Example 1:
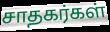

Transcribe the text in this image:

சாதகர்கள்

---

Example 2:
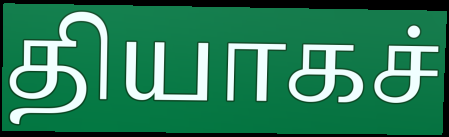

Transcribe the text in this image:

தியாகச்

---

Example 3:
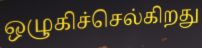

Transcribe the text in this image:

ஒழுகிச்செல்கிறது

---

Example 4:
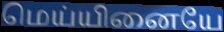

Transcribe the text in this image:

மெய்யினையே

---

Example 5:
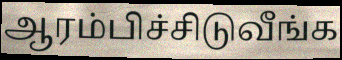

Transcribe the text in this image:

ஆரம்பிச்சிடுவீங்க